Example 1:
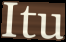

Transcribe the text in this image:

Itu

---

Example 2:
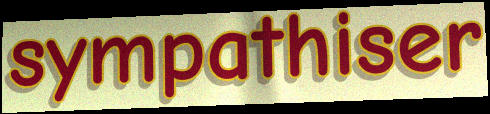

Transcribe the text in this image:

sympathiser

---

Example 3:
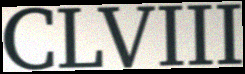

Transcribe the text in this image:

CLVIII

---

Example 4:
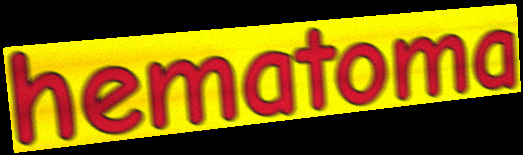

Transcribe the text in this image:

hematoma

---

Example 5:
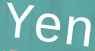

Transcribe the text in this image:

Yen